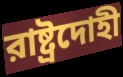
রাষ্ট্রদোহী